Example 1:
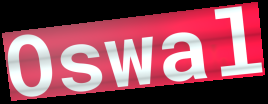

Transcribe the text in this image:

Oswal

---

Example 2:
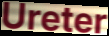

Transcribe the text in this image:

Ureter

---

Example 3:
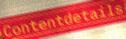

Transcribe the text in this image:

Contentdetails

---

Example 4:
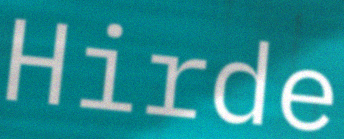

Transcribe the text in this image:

Hirde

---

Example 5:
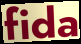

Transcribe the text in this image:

fida